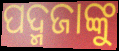
ପଦ୍ମଜାଙ୍କୁ